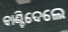
ବାଣ୍ଟିଦେଲେ